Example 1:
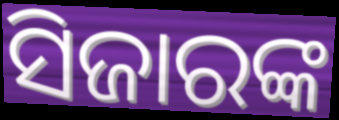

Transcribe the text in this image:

ସିଜାରଙ୍କ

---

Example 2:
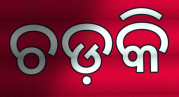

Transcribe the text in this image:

ଚଡ଼କି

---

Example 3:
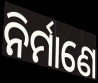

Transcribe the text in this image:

ନିର୍ମାଣେ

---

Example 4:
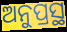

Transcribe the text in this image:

ଅନୁପ୍ରସ୍ଥ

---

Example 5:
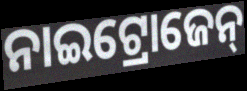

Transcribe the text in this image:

ନାଇଟ୍ରୋଜେନ୍